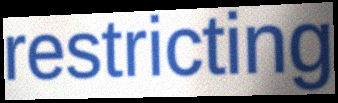
restricting